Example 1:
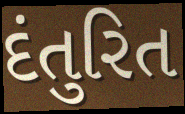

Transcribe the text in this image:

દંતુરિત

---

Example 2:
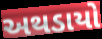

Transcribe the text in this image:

અથડાયો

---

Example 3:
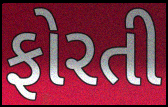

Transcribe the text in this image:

ફોરતી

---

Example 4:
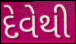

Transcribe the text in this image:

દેવેથી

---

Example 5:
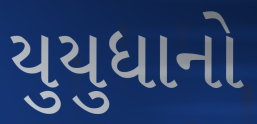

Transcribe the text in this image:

યુયુધાનો